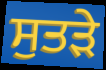
ਸੁਤੜੇ